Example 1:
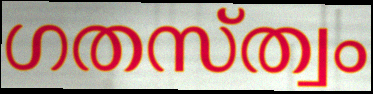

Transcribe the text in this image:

ഗതസ്ത്വം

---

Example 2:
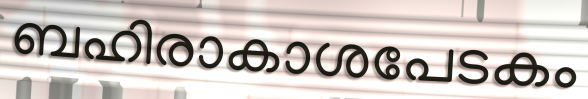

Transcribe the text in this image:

ബഹിരാകാശപേടകം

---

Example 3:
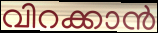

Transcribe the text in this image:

വിറക്കാൻ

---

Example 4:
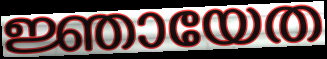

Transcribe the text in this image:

ജ്ഞായേത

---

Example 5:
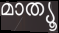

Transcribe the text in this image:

മാത്യൂ